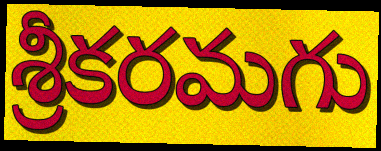
శ్రీకరమగు